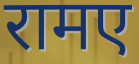
रामए